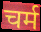
चर्म